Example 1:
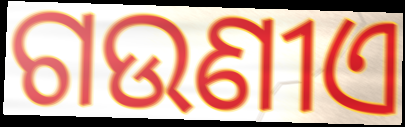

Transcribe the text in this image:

ଗଉଣୀଏ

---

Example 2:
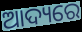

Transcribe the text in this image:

ଆଦ୍ୟରେ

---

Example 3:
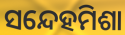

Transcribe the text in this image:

ସନ୍ଦେହମିଶା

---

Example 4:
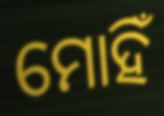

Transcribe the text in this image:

ମୋହିଁ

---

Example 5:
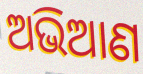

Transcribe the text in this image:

ଅଭିଆଣ